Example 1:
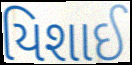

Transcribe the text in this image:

યિશાઈ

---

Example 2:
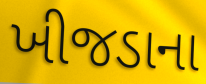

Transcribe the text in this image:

ખીજડાના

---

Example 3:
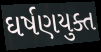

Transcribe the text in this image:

ઘર્ષણયુક્ત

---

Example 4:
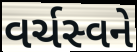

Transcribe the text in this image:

વર્ચસ્વને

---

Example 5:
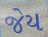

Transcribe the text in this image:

જેય